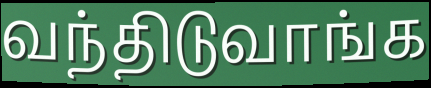
வந்திடுவாங்க